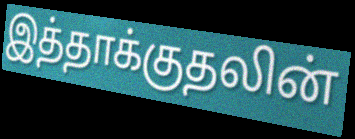
இத்தாக்குதலின்